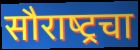
सौराष्ट्रचा